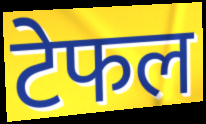
टेफल